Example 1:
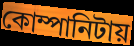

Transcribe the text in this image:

কোম্পানিটায়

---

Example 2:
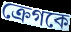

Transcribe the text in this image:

ক্রেগকে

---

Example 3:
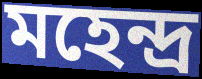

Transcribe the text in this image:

মহেন্দ্র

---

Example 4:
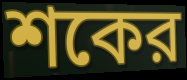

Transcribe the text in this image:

শকের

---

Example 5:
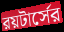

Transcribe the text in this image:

রয়টার্সের